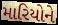
મારિયોને